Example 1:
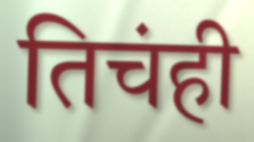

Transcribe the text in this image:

तिचंही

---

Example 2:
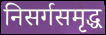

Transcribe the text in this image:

निसर्गसमृद्ध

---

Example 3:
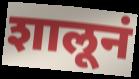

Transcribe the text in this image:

शालूनं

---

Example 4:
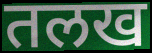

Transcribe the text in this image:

तलख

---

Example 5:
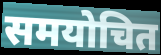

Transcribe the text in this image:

समयोचित